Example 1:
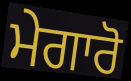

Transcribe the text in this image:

ਮੇਗਾਰੋ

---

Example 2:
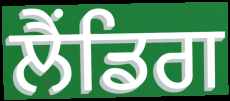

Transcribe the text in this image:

ਲੈਂਡਿਗ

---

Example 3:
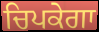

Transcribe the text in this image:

ਚਿਪਕੇਗਾ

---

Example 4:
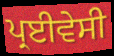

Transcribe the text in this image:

ਪ੍ਰਈਵੇਸੀ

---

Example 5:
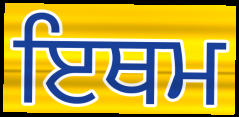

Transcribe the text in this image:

ਇਥਮ